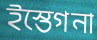
ইস্তেগনা